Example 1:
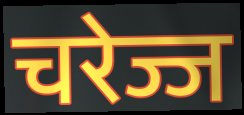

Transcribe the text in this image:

चरेज्ज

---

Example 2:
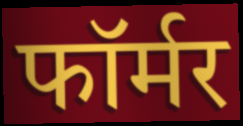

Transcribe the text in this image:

फॉर्मर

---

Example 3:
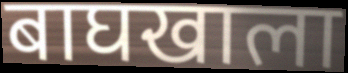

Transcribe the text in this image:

बाघखाला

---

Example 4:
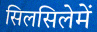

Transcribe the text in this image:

सिलसिलेमें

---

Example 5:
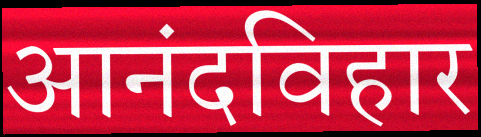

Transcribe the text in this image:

आनंदविहार